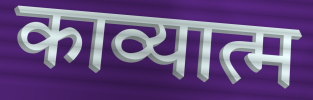
काव्यात्म